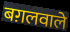
बग़लवाले